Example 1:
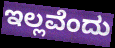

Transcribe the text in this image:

ಇಲ್ಲವೆಂದು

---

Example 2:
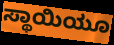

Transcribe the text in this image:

ಸ್ಥಾಯಿಯೂ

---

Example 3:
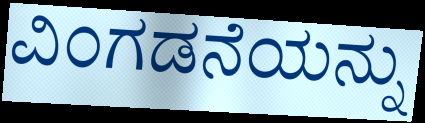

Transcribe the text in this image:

ವಿಂಗಡನೆಯನ್ನು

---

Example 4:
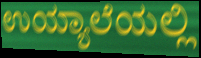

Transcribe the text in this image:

ಉಯ್ಯಾಲೆಯಲ್ಲಿ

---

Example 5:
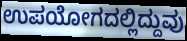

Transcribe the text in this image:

ಉಪಯೋಗದಲ್ಲಿದ್ದುವು